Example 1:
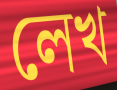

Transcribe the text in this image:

লেখ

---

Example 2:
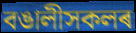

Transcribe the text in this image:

বঙালীসকলৰ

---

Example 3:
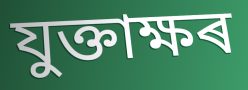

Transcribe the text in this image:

যুক্তাক্ষৰ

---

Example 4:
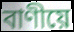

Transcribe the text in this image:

বাণীয়ে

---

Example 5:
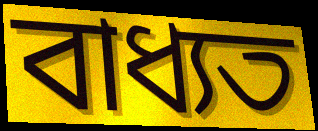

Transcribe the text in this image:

বাধ্যত